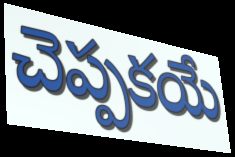
చెప్పకయే